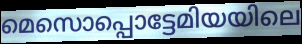
മെസൊപ്പൊട്ടേമിയയിലെ